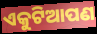
ଏକୁଟିଆପଣ